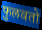
फुलवतो